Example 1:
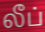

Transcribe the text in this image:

லீப்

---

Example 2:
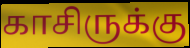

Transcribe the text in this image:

காசிருக்கு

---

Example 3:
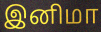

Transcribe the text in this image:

இனிமா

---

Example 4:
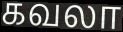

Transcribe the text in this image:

கவலா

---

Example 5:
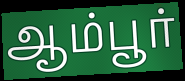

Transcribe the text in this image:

ஆம்பூர்